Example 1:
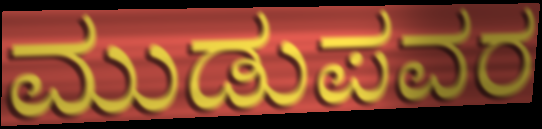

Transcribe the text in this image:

ಮುಡುಪವರ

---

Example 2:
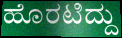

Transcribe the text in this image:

ಹೊರಟಿದ್ದು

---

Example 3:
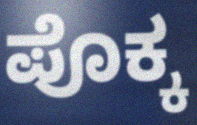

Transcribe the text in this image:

ಪೊಕ್ಕ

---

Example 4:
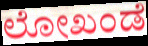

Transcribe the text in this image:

ಲೋಖಂಡೆ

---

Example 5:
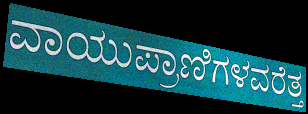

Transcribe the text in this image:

ವಾಯುಪ್ರಾಣಿಗಳವರೆತ್ತ